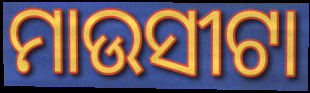
ମାଉସୀଟା